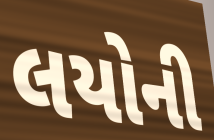
લયોની